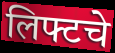
लिफ्टचे